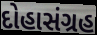
દોહાસંગ્રહ